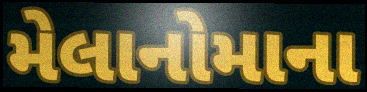
મેલાનોમાના